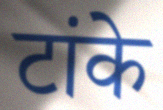
टांके